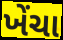
ખેંચા